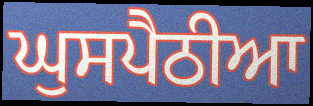
ਘੁਸਪੈਠੀਆ